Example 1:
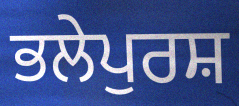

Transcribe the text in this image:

ਭਲੇਪੁਰਸ਼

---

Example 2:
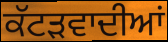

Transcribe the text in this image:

ਕੱਟੜਵਾਦੀਆਂ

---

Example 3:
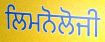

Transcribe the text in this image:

ਲਿਮਨੋਲੋਜੀ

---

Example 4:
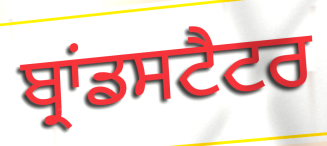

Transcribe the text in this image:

ਬ੍ਰਾਂਡਸਟੈਟਰ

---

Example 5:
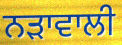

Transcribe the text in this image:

ਨੜਾਵਾਲੀ